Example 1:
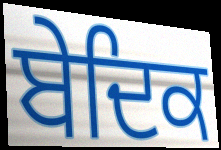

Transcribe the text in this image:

ਬੇਦਿਕ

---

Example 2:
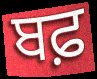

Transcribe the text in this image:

ਬਫ਼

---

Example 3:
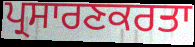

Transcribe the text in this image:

ਪ੍ਰਸਾਰਣਕਰਤਾ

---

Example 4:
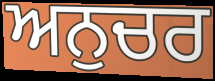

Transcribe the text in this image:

ਅਨੁਚਰ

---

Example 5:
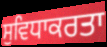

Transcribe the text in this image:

ਸੁਵਿਧਾਕਰਤਾ